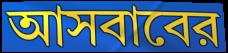
আসবাবের